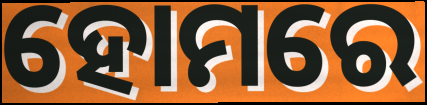
ହୋମରେ